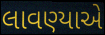
લાવણ્યાએ